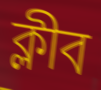
ক্লীব